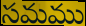
సమము